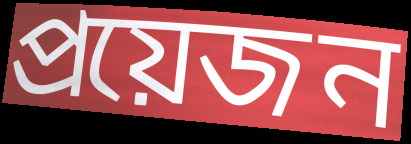
প্রয়েজন